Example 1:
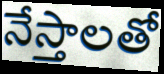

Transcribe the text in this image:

నేస్తాలతో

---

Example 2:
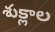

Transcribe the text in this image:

శుక్లాల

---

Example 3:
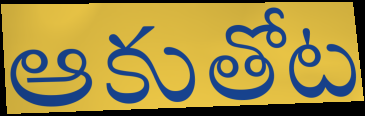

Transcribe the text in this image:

ఆకుతోట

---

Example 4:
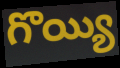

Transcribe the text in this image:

గొయ్యి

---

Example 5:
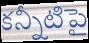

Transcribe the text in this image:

కన్నీటిపై